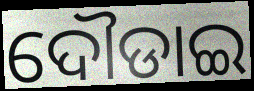
ଦୌଡାଇ